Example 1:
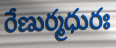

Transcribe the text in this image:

రేణుర్మధురః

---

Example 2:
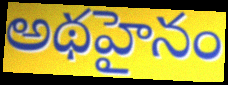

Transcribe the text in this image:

అథహైనం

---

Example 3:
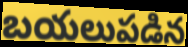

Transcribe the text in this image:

బయలుపడిన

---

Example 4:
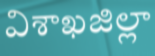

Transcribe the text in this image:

విశాఖజిల్లా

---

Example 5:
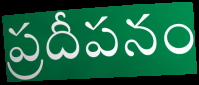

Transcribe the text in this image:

ప్రదీపనం